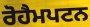
ਰੋਹੈਮਪਟਨ